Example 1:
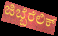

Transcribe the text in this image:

ಜಿಬ್ಬೆರೆಲಿಕ್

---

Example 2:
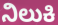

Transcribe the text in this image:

ನಿಲುಕಿ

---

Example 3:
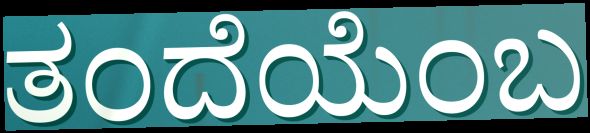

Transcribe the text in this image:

ತಂದೆಯೆಂಬ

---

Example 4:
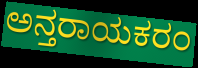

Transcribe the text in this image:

ಅನ್ತರಾಯಕರಂ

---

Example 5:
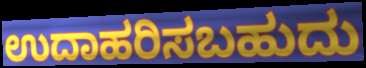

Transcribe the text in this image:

ಉದಾಹರಿಸಬಹುದು